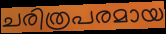
ചരിത്രപരമായ